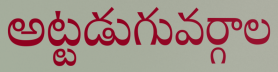
అట్టడుగువర్గాల